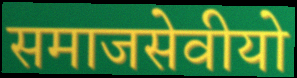
समाजसेवीयो